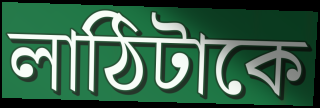
লাঠিটাকে